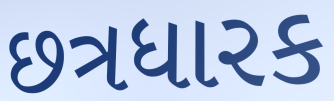
છત્રધારક